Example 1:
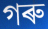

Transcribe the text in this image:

গৰু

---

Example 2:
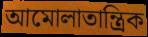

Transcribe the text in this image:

আমোলাতান্ত্ৰিক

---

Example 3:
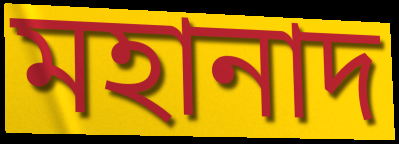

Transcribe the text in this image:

মহানাদ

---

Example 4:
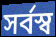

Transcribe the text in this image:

সৰ্বস্ব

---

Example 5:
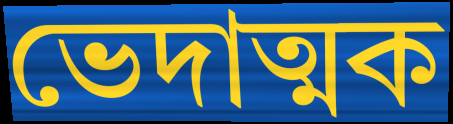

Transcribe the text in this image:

ভেদাত্মক